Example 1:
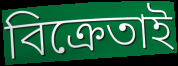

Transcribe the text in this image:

বিক্ৰেতাই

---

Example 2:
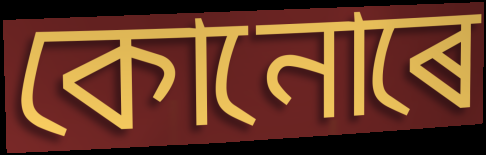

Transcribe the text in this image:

কোনোৰে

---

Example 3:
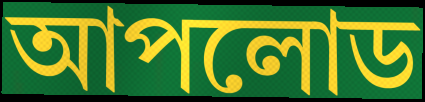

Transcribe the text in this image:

আপলোড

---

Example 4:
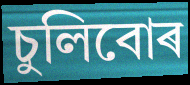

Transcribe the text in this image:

চুলিবোৰ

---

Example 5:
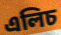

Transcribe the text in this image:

এলিচ